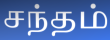
சந்தம்